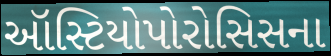
ઑસ્ટિયોપોરોસિસના